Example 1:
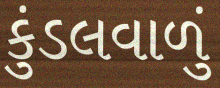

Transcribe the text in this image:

કુંડલવાળું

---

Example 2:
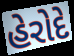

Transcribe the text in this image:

હેરોદે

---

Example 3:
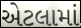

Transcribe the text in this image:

એટલામાં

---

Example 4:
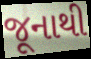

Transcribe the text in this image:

જૂનાથી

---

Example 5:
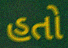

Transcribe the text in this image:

હતો